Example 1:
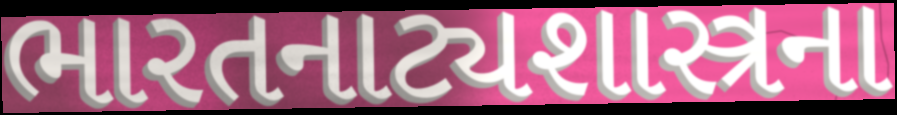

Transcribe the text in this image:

ભારતનાટ્યશાસ્ત્રના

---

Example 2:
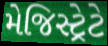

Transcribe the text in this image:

મેજિસ્ટ્રેટે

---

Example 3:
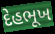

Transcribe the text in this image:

દેહભૂખ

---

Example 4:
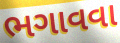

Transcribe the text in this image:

ભગાવવા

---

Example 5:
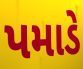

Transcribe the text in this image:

પમાડે